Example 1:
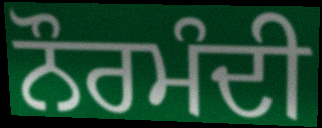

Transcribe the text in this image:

ਨੌਰਮੰਦੀ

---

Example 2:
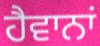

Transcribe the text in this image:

ਹੈਵਾਨਾਂ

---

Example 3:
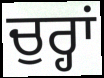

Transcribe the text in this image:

ਚੁਰ੍ਹਾਂ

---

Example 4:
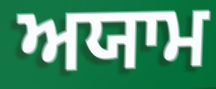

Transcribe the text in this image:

ਅਯਾਮ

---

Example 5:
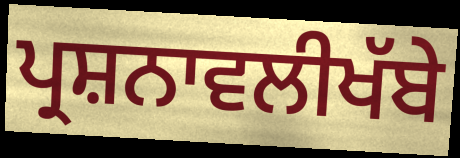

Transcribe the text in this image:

ਪ੍ਰਸ਼ਨਾਵਲੀਖੱਬੇ